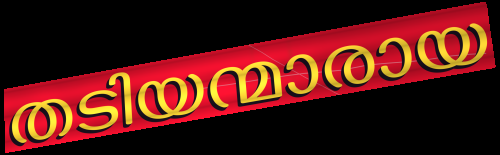
തടിയന്മാരായ